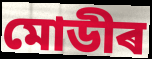
মোডীৰ